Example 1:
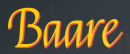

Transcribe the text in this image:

Baare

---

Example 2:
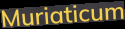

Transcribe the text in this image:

Muriaticum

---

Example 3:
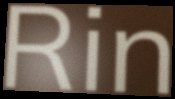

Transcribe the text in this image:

Rin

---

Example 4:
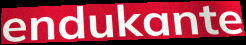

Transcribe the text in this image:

endukante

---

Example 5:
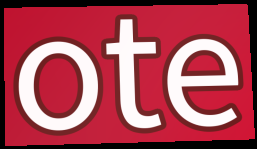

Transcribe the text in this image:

ote